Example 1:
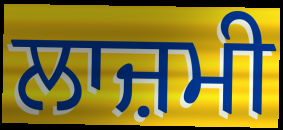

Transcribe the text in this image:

ਲਾਜ਼ਮੀ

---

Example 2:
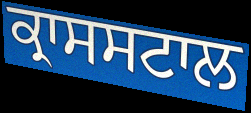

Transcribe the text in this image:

ਕ੍ਰਾਸਸਟਾਲ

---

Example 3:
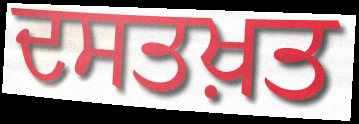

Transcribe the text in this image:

ਦਸਤਖ਼ਤ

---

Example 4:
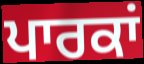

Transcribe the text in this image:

ਪਾਰਕਾਂ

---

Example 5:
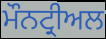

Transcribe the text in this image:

ਮੌਨਟ੍ਰੀਅਲ